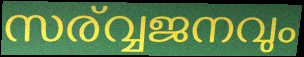
സര്വ്വജനവും